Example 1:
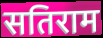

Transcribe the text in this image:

सतिराम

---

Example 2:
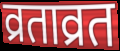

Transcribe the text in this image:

व्रताव्रत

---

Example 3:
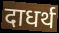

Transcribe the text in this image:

दाधर्थ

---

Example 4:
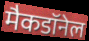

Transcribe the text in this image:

मैकडॉनेल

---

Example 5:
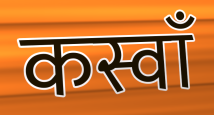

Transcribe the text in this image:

कस्वाँ